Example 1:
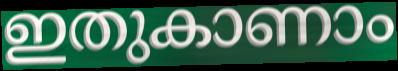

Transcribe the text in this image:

ഇതുകാണാം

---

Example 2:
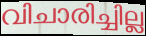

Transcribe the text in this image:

വിചാരിച്ചില്ല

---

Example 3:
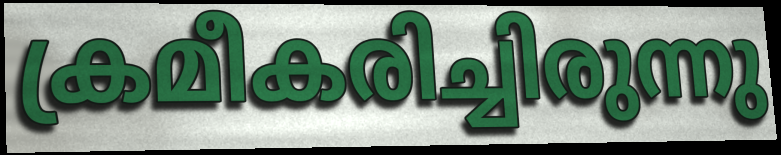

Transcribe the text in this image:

ക്രമീകരിച്ചിരുന്നു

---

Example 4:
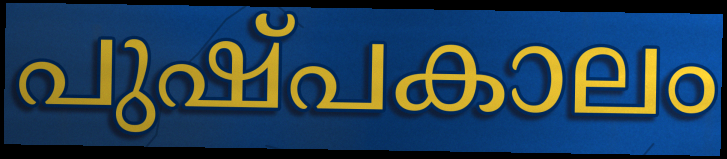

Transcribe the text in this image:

പുഷ്പകാലം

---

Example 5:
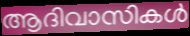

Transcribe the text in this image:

ആദിവാസികൾ